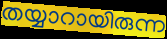
തയ്യാറായിരുന്ന